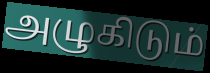
அழுகிடும்